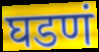
घडणं